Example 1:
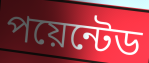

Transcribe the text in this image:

পয়েন্টেড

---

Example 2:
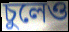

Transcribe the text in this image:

চুলেও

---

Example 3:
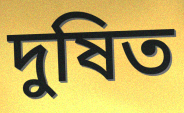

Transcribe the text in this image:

দুষিত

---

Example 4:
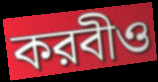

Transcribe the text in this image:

করবীও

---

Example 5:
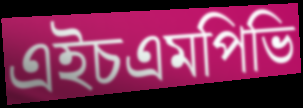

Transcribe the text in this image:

এইচএমপিভি